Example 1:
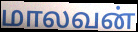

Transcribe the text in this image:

மாலவன்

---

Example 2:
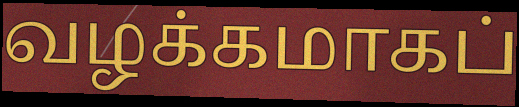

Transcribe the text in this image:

வழக்கமாகப்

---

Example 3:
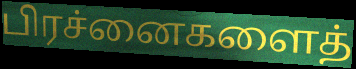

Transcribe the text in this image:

பிரச்னைகளைத்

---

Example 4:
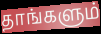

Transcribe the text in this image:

தாங்களும்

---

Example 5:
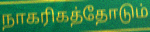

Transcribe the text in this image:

நாகரிகத்தோடும்